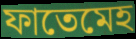
ফাতেমেহ